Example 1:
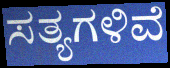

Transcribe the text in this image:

ಸತ್ಯಗಳಿವೆ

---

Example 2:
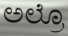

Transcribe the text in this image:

ಅಲ್ರೊ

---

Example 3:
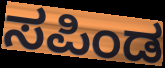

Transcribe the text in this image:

ಸಪಿಂಡ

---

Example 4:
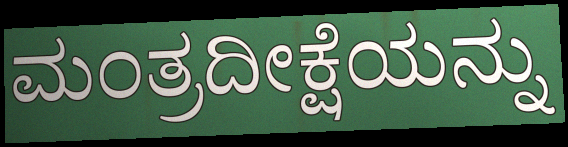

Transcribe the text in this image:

ಮಂತ್ರದೀಕ್ಷೆಯನ್ನು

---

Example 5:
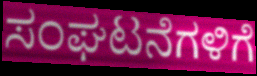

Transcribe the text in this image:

ಸಂಘಟನೆಗಳಿಗೆ